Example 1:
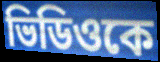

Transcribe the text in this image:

ভিডিওকে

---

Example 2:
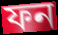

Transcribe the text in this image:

ফন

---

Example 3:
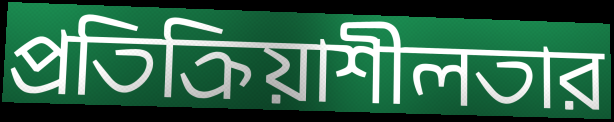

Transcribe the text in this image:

প্রতিক্রিয়াশীলতার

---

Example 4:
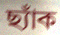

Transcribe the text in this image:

ছ্যাঁক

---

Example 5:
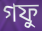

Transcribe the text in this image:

গফু